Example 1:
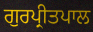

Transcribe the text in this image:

ਗੁਰਪ੍ਰੀਤਪਾਲ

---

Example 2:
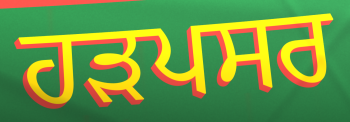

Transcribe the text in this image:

ਹੜਪਸਰ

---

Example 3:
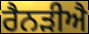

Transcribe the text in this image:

ਰੈਨੜੀਐ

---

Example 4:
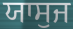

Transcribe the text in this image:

ਯਾਸੁਜ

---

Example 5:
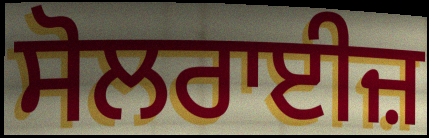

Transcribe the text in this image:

ਸੋਲਰਾਈਜ਼